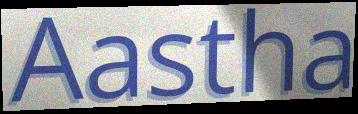
Aastha